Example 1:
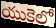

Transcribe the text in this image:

యుకెలో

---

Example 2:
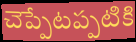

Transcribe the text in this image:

చెప్పేటప్పటికి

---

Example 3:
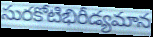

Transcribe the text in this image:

సురకోటిభిరీడ్యమాన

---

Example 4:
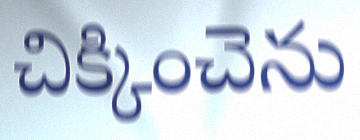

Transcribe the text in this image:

చిక్కించెను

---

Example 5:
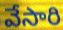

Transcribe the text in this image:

వేసారి